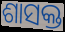
ଶାସକ୍ତ